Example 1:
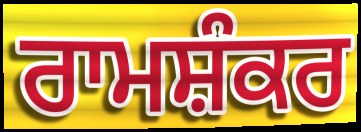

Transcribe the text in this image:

ਰਾਮਸ਼ੰਕਰ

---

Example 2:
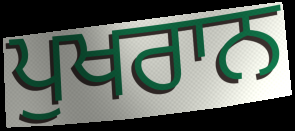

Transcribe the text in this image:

ਪੁਖਰਾਨ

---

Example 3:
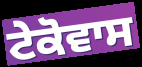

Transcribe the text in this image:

ਟੇਕੋਵਾਸ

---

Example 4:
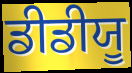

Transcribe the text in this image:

ਡੀਡੀਯੂ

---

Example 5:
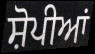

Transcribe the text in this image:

ਸ਼ੋਪੀਆਂ